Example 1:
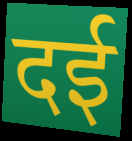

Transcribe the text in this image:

दई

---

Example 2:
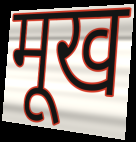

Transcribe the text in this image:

मूख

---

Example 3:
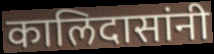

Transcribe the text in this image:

कालिदासांनी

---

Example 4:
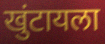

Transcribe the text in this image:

खुंटायला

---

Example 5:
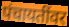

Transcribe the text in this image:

पंचायतींवर